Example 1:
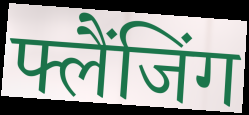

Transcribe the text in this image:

फ्लैंजिंग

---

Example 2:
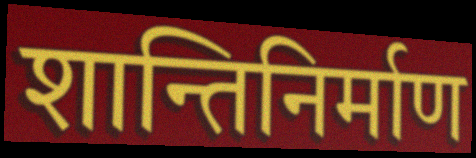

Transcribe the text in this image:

शान्तिनिर्माण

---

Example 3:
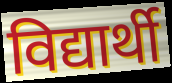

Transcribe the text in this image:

विद्यार्थी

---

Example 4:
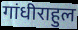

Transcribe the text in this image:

गांधीराहुल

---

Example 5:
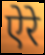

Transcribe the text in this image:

ऐरे